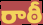
రాఠీ